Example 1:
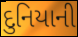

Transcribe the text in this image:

દુનિયાની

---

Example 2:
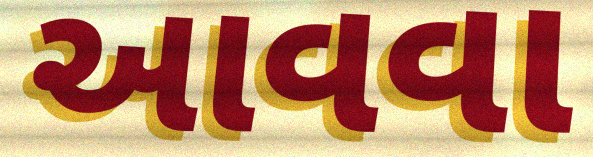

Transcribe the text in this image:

આવવા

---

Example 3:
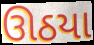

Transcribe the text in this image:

ઊઠયા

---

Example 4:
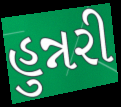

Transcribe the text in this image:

હુન્નરી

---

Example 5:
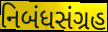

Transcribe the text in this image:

નિબંધસંગ્રહ